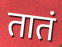
तातं